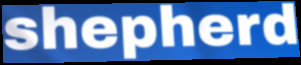
shepherd